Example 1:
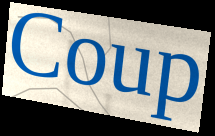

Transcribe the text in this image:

Coup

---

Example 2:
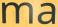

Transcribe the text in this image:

ma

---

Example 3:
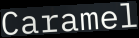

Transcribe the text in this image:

Caramel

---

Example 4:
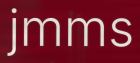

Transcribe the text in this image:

jmms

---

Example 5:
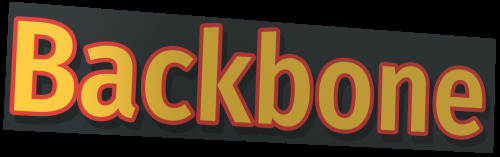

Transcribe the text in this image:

Backbone